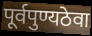
पूर्वपुण्यठेवा